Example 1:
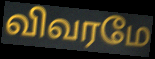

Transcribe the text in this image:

விவரமே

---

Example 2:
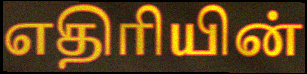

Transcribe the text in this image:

எதிரியின்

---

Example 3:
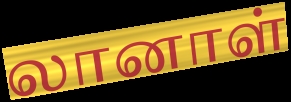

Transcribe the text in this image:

லானாள்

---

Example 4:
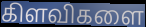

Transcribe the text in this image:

கிளவிகளை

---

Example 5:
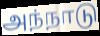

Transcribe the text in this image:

அந்நாடு